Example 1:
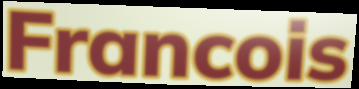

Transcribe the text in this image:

Francois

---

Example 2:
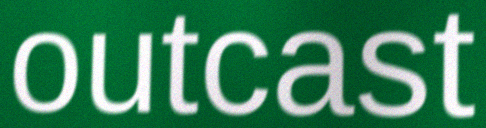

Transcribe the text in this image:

outcast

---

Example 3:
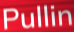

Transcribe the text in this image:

Pullin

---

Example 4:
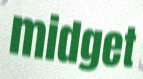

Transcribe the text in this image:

midget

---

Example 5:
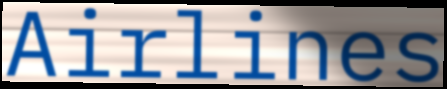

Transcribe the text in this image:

Airlines